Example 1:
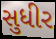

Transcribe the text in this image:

સુધીર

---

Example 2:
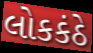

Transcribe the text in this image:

લોકકંઠે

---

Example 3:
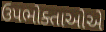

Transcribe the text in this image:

ઉપભોક્તાઓએ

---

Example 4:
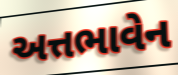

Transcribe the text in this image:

અત્તભાવેન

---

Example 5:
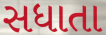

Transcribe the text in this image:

સધાતા